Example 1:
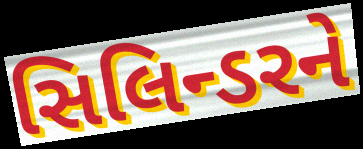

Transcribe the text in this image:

સિલિન્ડરને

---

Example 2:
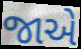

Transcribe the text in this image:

જાએ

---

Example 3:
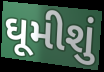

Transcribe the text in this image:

ઘૂમીશું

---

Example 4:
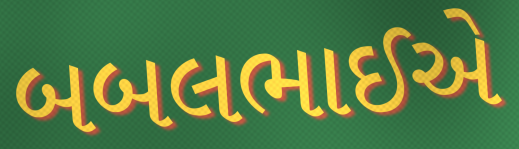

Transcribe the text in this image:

બબલભાઈએ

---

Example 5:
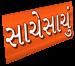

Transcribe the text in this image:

સાચેસાચું